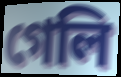
গেলি